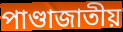
পাণ্ডাজাতীয়